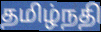
தமிழ்நதி